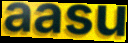
aasu